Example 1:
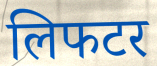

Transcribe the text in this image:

लिफटर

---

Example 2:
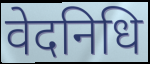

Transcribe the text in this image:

वेदनिधि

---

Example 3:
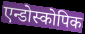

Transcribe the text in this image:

एन्डोस्कोपिक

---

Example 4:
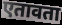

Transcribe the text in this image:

एतावता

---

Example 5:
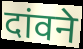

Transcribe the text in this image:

दांवने